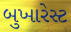
બુખારેસ્ટ